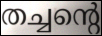
തച്ചന്റെ